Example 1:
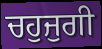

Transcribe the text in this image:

ਚਹੁਜੁਗੀ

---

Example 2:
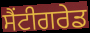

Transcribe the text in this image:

ਸੈਂਟੀਗਰੇਡ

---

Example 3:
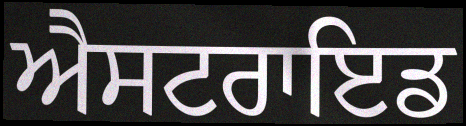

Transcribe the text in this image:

ਐਸਟਰਾਇਡ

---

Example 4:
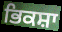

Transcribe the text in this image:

ਭਿਕਸ਼ਾ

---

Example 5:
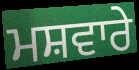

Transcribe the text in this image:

ਮਸ਼ਵਾਰੇ